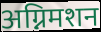
अग्निमशन